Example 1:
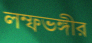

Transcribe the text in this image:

লম্ফভঙ্গীর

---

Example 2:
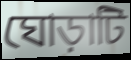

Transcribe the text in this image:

ঘোড়াটি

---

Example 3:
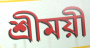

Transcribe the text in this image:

শ্রীময়ী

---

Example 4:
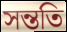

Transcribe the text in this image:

সন্ততি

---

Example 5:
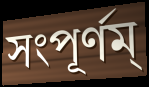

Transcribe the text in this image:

সংপূর্ণম্